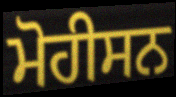
ਮੋਹੀਸਨ